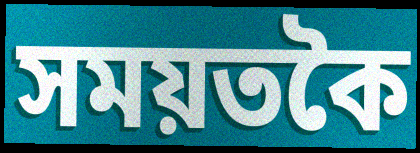
সময়তকৈ